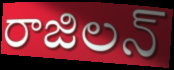
రాజిలన్